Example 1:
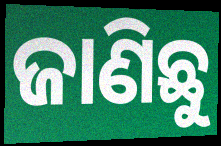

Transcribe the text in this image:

ଜାଣିଛୁ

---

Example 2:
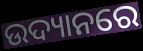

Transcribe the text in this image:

ଉଦ୍ୟାନରେ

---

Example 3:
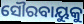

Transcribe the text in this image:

ସୌରବାୟୁକୁ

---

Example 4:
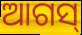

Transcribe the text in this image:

ଆଗସ୍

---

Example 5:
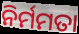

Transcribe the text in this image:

ନିର୍ମମତା